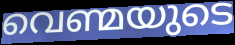
വെണ്മയുടെ